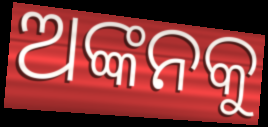
ଅଙ୍କନକୁ